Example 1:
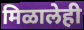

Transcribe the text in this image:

मिळालेही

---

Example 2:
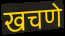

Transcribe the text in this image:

खचणे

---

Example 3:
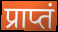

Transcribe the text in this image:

प्राप्तं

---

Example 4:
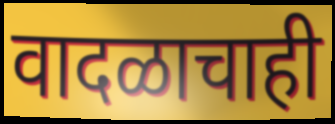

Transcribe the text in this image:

वादळाचाही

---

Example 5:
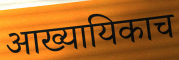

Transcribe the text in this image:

आख्यायिकाच